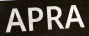
APRA